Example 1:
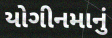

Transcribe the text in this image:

યોગીનમાનું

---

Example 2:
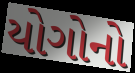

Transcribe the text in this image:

યોગોનો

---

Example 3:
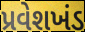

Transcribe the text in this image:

પ્રવેશખંડ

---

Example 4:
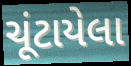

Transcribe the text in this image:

ચૂંટાયેલા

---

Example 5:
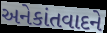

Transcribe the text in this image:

અનેકાંતવાદને